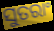
ସୁତରାଂ